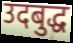
उदबुद्ध